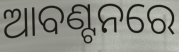
ଆବଣ୍ଟନରେ